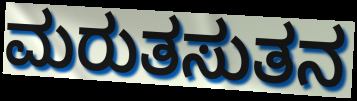
ಮರುತಸುತನ